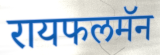
रायफलमॅन